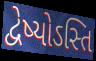
દ્વેષ્યોઽસ્તિ